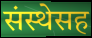
संस्थेसह